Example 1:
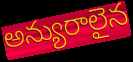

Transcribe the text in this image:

అన్యురాలైన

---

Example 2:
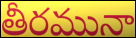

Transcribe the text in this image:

తీరమునా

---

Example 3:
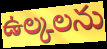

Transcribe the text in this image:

ఉల్కలను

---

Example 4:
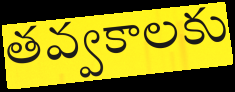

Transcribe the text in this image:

తవ్వకాలకు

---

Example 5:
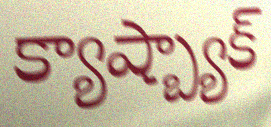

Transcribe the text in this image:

క్యాష్బ్యాక్